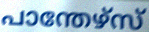
പാന്തേഴ്സ്